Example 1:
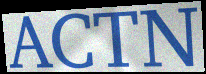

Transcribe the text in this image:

ACTN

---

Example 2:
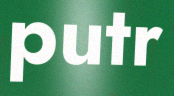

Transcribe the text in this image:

putr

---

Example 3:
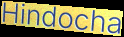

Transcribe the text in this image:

Hindocha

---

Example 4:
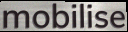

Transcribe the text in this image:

mobilise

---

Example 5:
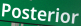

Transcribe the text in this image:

Posterior